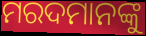
ମରଦମାନଙ୍କୁ